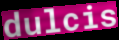
dulcis